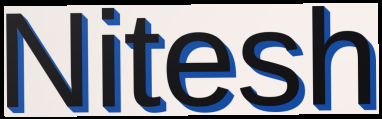
Nitesh